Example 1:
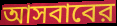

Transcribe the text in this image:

আসবাবের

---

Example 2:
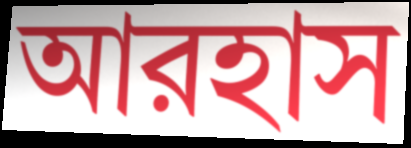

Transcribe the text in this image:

আরহাস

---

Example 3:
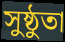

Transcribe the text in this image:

সুষ্ঠুতা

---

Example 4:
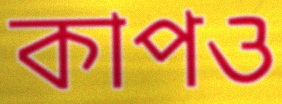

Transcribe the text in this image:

কাপও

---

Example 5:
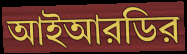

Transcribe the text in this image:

আইআরডির